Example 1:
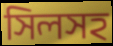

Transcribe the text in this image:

সিলসহ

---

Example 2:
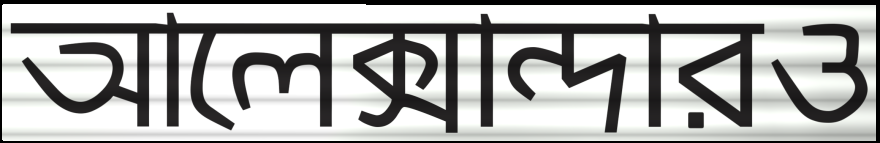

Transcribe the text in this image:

আলেক্সান্দারও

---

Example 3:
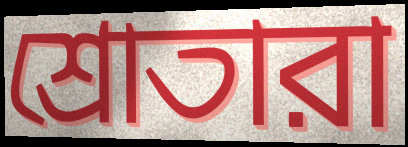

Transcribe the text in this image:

শ্রোতারা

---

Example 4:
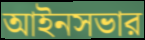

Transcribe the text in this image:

আইনসভার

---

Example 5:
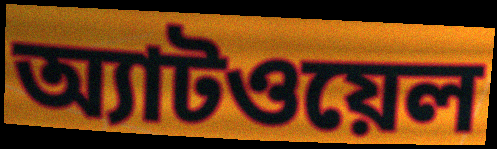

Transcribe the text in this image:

অ্যাটওয়েল